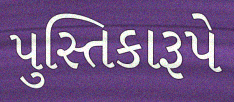
પુસ્તિકારૂપે